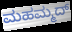
ಮಹಮ್ಮದ್